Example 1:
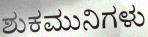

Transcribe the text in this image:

ಶುಕಮುನಿಗಳು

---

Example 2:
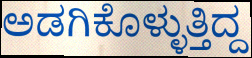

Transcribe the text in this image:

ಅಡಗಿಕೊಳ್ಳುತ್ತಿದ್ದ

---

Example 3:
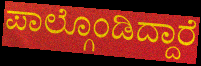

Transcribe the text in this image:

ಪಾಲ್ಗೊಂಡಿದ್ದಾರೆ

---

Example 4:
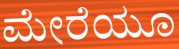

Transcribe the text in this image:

ಮೇರೆಯೂ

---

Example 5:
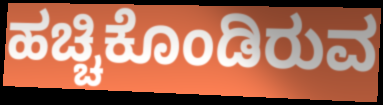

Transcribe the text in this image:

ಹಚ್ಚಿಕೊಂಡಿರುವ